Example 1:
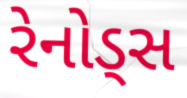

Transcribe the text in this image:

રેનોડ્સ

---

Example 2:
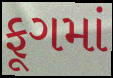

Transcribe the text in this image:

ફૂગમાં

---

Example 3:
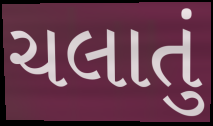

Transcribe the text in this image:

ચલાતું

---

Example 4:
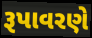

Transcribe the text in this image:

રૂપાવરણે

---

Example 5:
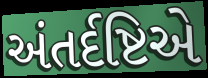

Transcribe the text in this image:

અંતર્દષ્ટિએ